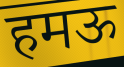
हमऊ